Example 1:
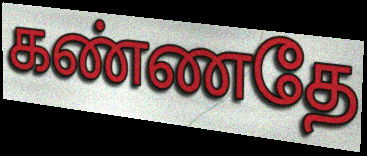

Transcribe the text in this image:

கண்ணதே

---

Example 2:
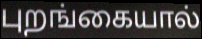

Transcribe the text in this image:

புறங்கையால்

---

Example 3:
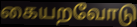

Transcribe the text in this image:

கையறவோடு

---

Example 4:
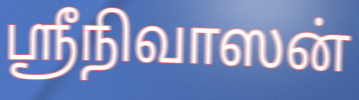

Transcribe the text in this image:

ஸ்ரீநிவாஸன்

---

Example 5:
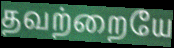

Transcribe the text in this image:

தவற்றையே